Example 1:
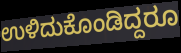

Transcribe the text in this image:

ಉಳಿದುಕೊಂಡಿದ್ದರೂ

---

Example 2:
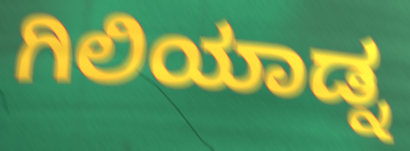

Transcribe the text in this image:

ಗಿಲಿಯಾಡ್ನ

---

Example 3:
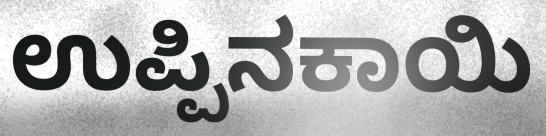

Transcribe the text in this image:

ಉಪ್ಪಿನಕಾಯಿ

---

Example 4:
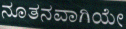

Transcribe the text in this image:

ನೂತನವಾಗಿಯೇ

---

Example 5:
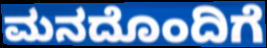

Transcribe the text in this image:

ಮನದೊಂದಿಗೆ